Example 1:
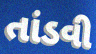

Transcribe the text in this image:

તાંડવી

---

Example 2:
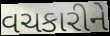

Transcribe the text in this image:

વચકારીને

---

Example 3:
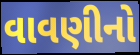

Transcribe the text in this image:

વાવણીનો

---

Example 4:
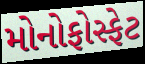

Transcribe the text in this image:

મોનોફોસ્ફેટ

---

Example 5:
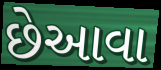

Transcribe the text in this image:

છેઆવા